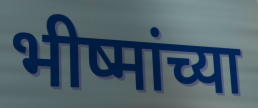
भीष्मांच्या